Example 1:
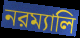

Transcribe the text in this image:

নরম্যালি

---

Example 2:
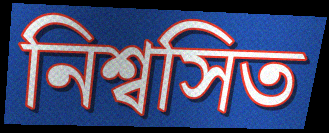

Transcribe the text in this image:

নিশ্বসিত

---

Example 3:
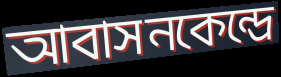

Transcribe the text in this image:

আবাসনকেন্দ্রে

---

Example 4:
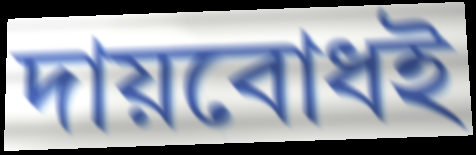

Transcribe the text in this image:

দায়বোধই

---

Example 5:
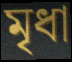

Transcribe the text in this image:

মৃধা